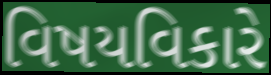
વિષયવિકારે